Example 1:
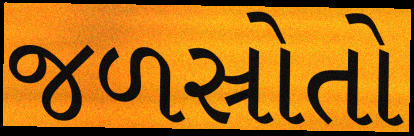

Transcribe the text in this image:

જળસ્રોતો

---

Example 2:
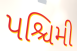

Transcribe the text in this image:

પશ્ચિમી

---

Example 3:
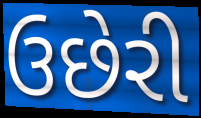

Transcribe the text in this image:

ઉછેરી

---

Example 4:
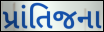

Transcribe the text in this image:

પ્રાંતિજના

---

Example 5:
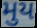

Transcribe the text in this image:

મુય